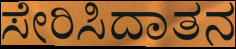
ಸೇರಿಸಿದಾತನ